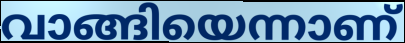
വാങ്ങിയെന്നാണ്